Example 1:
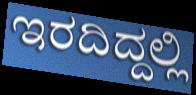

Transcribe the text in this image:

ಇರದಿದ್ದಲ್ಲಿ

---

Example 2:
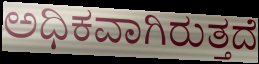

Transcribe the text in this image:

ಅಧಿಕವಾಗಿರುತ್ತದೆ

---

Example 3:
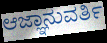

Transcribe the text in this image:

ಆಜ್ಞಾನುವರ್ತಿ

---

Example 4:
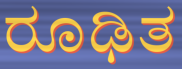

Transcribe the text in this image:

ರೂಢಿತ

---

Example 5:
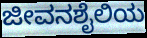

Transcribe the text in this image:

ಜೀವನಶೈಲಿಯ